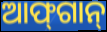
ଆଫ୍‌ଗାନ୍